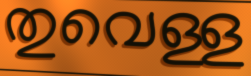
തുവെള്ള